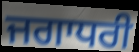
ਜਗਾਧਰੀ